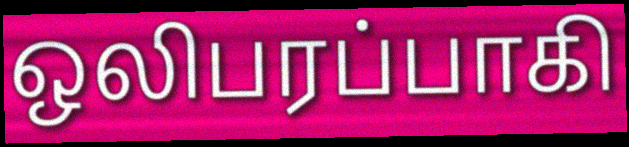
ஒலிபரப்பாகி